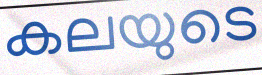
കലയുടെ